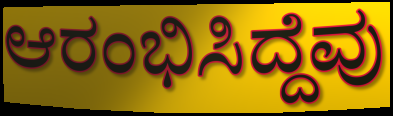
ಆರಂಭಿಸಿದ್ದೆವು